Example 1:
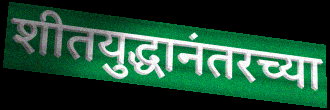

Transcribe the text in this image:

शीतयुद्धानंतरच्या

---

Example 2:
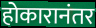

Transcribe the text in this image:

होकारानंतर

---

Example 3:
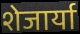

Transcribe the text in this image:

शेजार्या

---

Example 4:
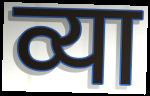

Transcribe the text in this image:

व्‍या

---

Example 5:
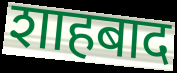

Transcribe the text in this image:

शाहबाद